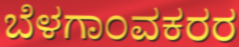
ಬೆಳಗಾಂವಕರರ